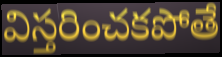
విస్తరించకపోతే